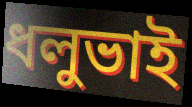
ধলুভাই